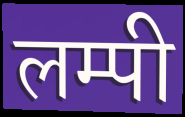
लम्पी